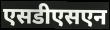
एसडीएसएन